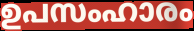
ഉപസംഹാരം